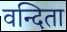
वन्दिता